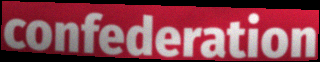
confederation